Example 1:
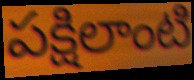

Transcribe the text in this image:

పక్షిలాంటి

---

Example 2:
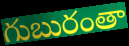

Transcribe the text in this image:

గుబురంతా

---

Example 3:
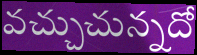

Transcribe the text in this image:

వచ్చుచున్నదో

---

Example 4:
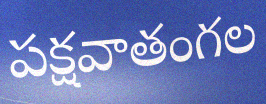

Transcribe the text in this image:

పక్షవాతంగల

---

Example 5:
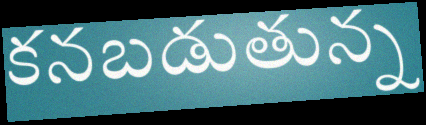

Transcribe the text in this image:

కనబడుతున్న